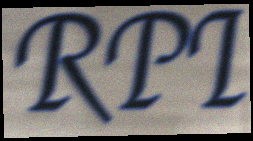
RPI